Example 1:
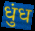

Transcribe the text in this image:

धुंध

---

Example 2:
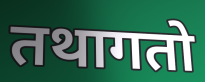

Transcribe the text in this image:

तथागतो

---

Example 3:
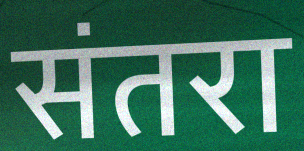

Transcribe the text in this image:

संतरा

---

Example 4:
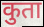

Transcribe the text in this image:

कुता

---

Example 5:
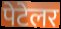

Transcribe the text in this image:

पेटेलर